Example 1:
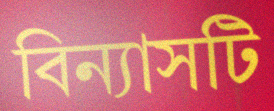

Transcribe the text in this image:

বিন্যাসটি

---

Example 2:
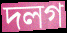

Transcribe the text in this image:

দলগ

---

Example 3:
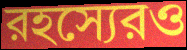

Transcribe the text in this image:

রহস্যেরও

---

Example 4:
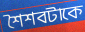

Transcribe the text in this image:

শৈশবটাকে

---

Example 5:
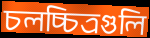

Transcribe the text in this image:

চলচ্চিত্রগুলি